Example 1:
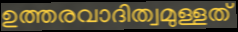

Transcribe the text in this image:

ഉത്തരവാദിത്വമുള്ളത്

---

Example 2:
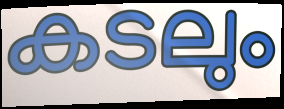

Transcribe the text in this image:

കടലും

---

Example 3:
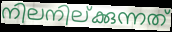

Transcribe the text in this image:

നിലനില്ക്കുന്നത്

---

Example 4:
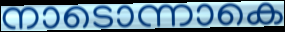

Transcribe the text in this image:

നാടൊന്നാകെ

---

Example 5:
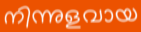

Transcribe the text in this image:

നിന്നുളവായ